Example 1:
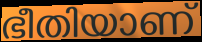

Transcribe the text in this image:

ഭീതിയാണ്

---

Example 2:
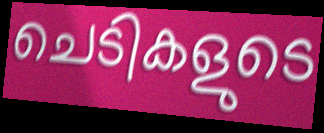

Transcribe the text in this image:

ചെടികളുടെ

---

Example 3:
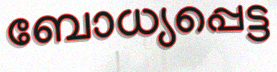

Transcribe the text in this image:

ബോധ്യപ്പെട്ട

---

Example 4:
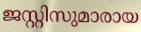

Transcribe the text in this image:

ജസ്റ്റിസുമാരായ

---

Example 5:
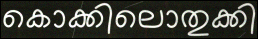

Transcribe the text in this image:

കൊക്കിലൊതുക്കി